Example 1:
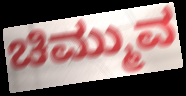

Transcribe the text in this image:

ಚಿಮ್ಮುವ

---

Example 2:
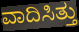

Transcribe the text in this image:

ವಾದಿಸಿತ್ತು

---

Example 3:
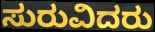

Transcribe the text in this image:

ಸುರುವಿದರು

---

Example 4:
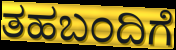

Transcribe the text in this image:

ತಹಬಂದಿಗೆ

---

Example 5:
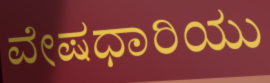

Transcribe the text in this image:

ವೇಷಧಾರಿಯು